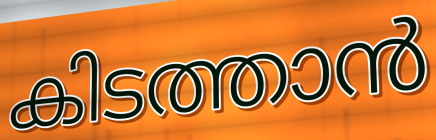
കിടത്താൻ